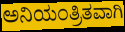
ಅನಿಯಂತ್ರಿತವಾಗಿ